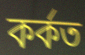
কৰ্কত